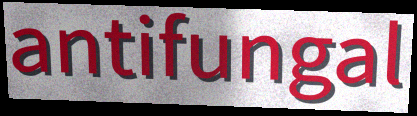
antifungal